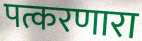
पत्करणारा